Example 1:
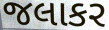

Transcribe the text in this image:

જલાકર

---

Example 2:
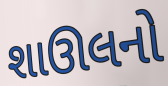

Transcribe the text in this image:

શાઊલનો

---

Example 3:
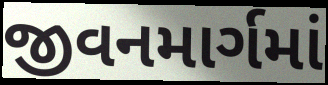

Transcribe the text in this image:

જીવનમાર્ગમાં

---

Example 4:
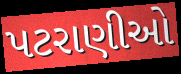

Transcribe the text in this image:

પટરાણીઓ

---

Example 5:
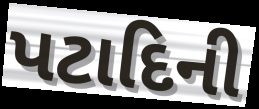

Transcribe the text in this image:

પટાદિની